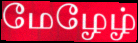
மேழேழ்